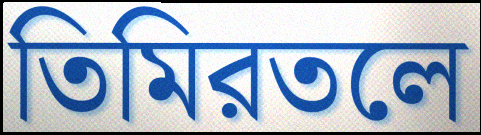
তিমিরতলে